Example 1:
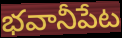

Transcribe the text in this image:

భవానీపేట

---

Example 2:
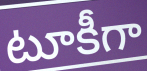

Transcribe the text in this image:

టూకీగా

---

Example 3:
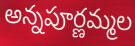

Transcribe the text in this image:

అన్నపూర్ణమ్మల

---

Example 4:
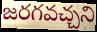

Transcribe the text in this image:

జరగవచ్చని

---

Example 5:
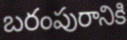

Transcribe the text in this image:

బరంపురానికి